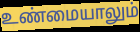
உண்மையாலும்